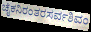
ಚೈಕನಿರಂತರಸರ್ವಶಿವಂ